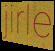
jirle